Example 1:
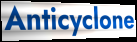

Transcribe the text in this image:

Anticyclone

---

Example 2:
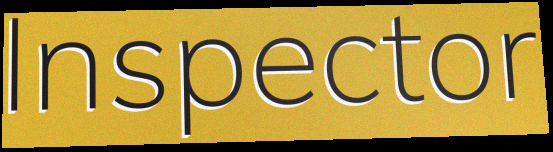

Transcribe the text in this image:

Inspector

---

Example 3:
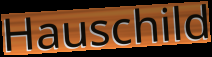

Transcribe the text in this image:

Hauschild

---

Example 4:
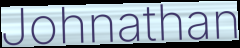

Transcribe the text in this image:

Johnathan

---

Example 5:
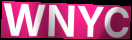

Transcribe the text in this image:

WNYC